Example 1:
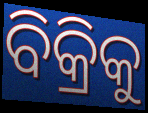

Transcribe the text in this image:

ବିକ୍ରିକୁ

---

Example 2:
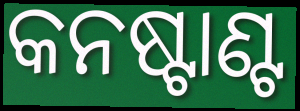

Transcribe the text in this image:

କନଷ୍ଟାଣ୍ଟ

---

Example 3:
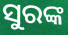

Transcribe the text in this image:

ସୁରଙ୍କ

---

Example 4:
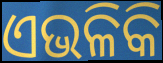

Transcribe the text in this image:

ଏଭଳିକି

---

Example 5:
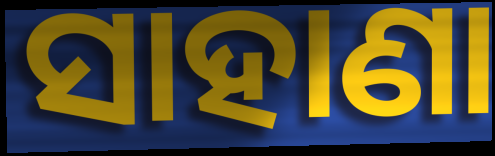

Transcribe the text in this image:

ସାହାଣା